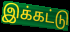
இக்கட்டு